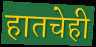
हातचेही